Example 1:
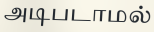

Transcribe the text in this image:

அடிபடாமல்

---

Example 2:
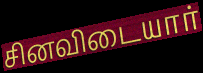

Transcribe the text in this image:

சினவிடையார்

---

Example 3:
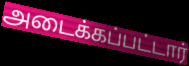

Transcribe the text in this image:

அடைக்கப்பட்டார்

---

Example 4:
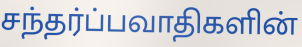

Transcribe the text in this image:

சந்தர்ப்பவாதிகளின்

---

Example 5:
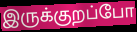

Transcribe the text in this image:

இருக்குறப்போ